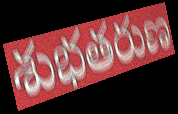
శుభతరుణ